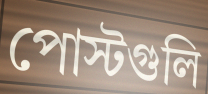
পোস্টগুলি